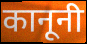
कानूनी